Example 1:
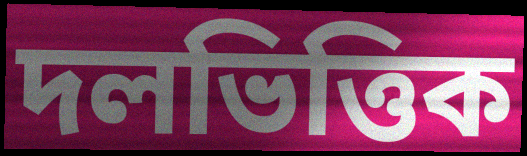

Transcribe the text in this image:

দলভিত্তিক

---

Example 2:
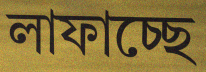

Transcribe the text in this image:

লাফাচ্ছে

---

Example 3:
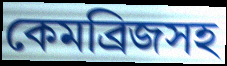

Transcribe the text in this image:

কেমব্রিজসহ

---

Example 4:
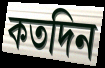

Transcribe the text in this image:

কতদিন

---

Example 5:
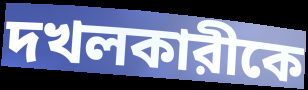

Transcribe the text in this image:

দখলকারীকে